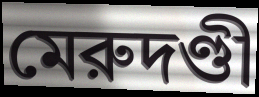
মেরুদণ্ডী